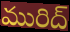
మురిద్